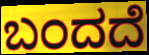
ಬಂದದೆ